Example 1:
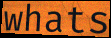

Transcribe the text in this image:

whats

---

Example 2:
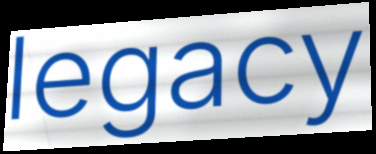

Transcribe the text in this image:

legacy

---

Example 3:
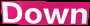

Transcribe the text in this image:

Down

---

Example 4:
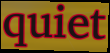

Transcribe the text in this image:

quiet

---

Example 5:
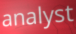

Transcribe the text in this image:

analyst